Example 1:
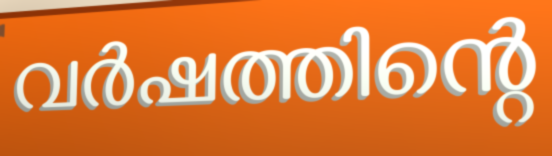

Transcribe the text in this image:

വർഷത്തിന്റെ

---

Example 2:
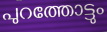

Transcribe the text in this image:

പുറത്തോട്ടും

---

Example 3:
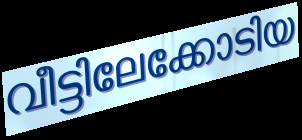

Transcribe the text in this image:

വീട്ടിലേക്കോടിയ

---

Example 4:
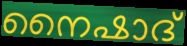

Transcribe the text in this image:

നൈഷാദ്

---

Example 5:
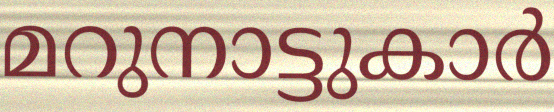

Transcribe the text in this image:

മറുനാട്ടുകാർ